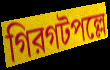
গিরগটপল্লে